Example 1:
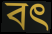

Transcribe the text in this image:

বৎ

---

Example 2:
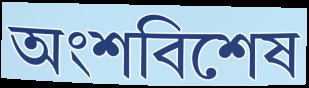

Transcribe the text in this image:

অংশবিশেষ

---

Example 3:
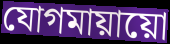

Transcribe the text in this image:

যোগমায়ায়ো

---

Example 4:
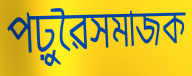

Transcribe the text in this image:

পঢ়ুৱৈসমাজক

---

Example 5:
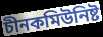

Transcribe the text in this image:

চীনকমিউনিষ্ট